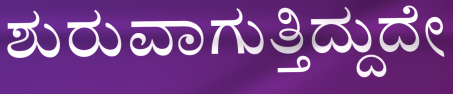
ಶುರುವಾಗುತ್ತಿದ್ದುದೇ